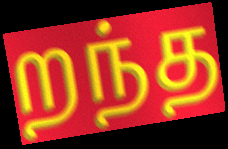
றந்த